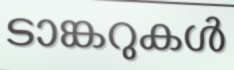
ടാങ്കറുകൾ